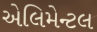
એલિમેન્ટલ